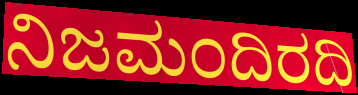
ನಿಜಮಂದಿರದಿ